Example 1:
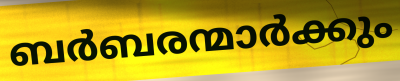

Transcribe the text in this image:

ബർബരന്മാർക്കും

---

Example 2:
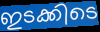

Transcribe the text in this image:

ഇടക്കിടെ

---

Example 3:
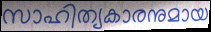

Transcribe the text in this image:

സാഹിത്യകാരനുമായ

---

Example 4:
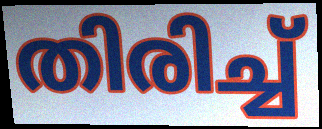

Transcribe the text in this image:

തിരിച്ച്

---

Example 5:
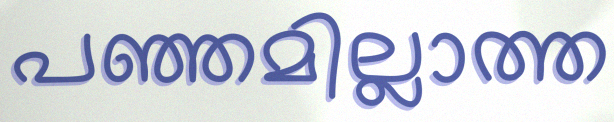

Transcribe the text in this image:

പഞ്ഞമില്ലാത്ത